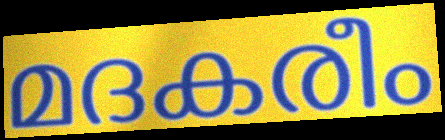
മദകരീം